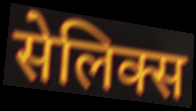
सेलिक्स